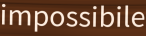
impossibile